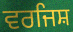
ਵਰਜਿਸ਼